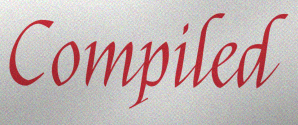
Compiled